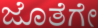
ಜೊತೆಗೇ